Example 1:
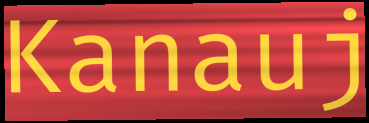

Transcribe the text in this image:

Kanauj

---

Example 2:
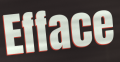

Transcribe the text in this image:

Efface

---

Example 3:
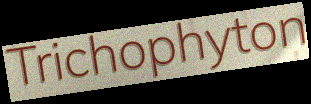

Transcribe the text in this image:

Trichophyton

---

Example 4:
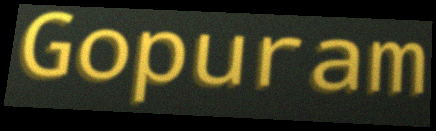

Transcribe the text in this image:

Gopuram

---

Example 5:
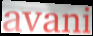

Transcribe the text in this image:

avani